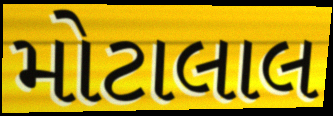
મોટાલાલ